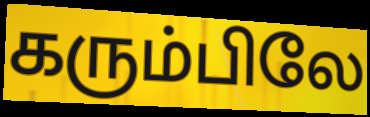
கரும்பிலே